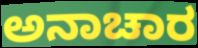
ಅನಾಚಾರ